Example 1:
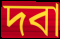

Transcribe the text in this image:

দবা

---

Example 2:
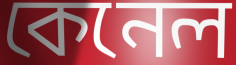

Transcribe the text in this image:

কেনেল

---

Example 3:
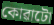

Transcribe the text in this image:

কোৱাটো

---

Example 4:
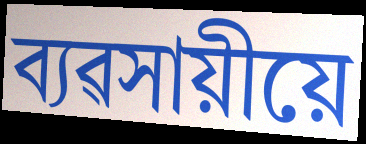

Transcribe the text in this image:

ব্যৱসায়ীয়ে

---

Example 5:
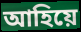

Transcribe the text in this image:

আহিয়ে